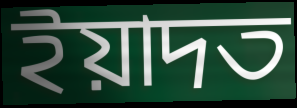
ইয়াদত